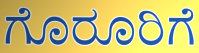
ಗೊರೂರಿಗೆ